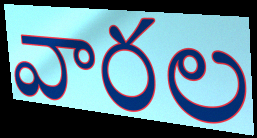
వారల